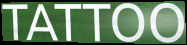
TATTOO